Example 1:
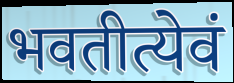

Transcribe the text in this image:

भवतीत्येवं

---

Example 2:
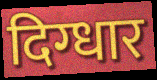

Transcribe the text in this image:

दिग्धार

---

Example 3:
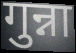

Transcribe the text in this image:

गुन्ना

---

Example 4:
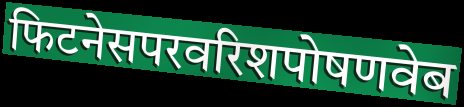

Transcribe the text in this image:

फिटनेसपरवरिशपोषणवेब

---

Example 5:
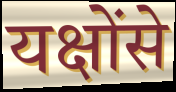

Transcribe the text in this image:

यक्षोंसे